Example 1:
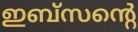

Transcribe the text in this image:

ഇബ്സന്റെ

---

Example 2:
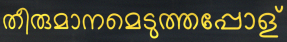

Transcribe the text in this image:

തീരുമാനമെടുത്തപ്പോള്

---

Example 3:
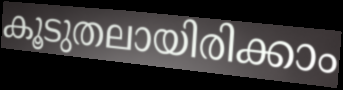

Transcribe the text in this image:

കൂടുതലായിരിക്കാം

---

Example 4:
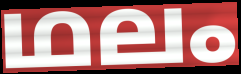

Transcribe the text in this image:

ഥലം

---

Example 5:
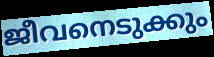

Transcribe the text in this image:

ജീവനെടുക്കും